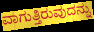
ವಾಗುತ್ತಿರುವುದನ್ನು